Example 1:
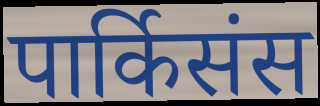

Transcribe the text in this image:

पार्किसंस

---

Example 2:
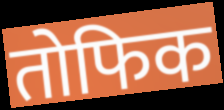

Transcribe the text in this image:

तोफिक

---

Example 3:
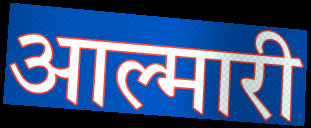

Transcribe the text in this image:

आल्मारी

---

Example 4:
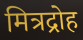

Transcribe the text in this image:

मित्रद्रोह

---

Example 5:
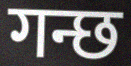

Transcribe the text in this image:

गन्छ